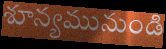
శూన్యమునుండి